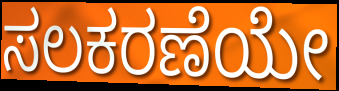
ಸಲಕರಣೆಯೇ